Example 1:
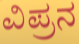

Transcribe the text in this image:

ವಿಪ್ರನ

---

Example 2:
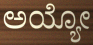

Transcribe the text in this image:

ಅಯ್ಯೋ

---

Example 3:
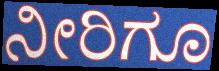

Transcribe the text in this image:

ನೀರಿಗೂ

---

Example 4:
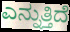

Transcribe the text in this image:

ಎನ್ನುತ್ತಿದೆ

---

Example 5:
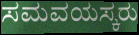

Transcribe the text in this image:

ಸಮವಯಸ್ಕರು